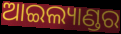
ଆଇଲ୍ୟାଣ୍ଡର